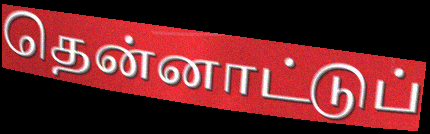
தென்னாட்டுப்